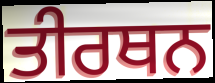
ਤੀਰਥਨ